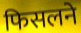
फिसलने